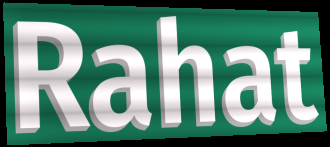
Rahat